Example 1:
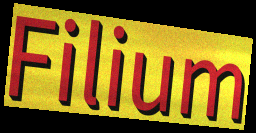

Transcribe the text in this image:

Filium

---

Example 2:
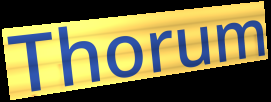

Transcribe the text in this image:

Thorum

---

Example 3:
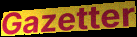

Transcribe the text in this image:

Gazetter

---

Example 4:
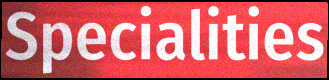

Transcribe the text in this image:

Specialities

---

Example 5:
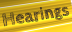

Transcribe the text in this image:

Hearings